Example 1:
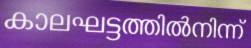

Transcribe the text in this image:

കാലഘട്ടത്തിൽനിന്ന്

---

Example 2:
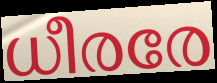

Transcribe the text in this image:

ധീരരേ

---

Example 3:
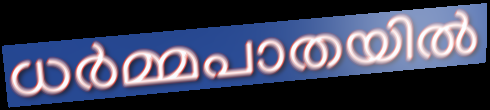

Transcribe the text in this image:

ധർമ്മപാതയിൽ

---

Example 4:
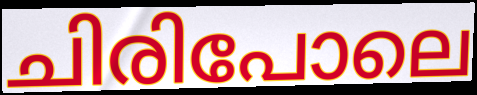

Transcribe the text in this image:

ചിരിപോലെ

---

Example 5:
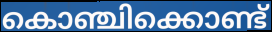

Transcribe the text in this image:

കൊഞ്ചിക്കൊണ്ട്